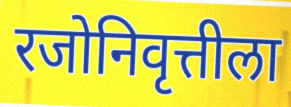
रजोनिवृत्तीला